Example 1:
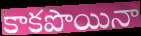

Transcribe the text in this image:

కాకపొయినా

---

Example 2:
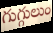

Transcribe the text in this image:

గుగ్గులుం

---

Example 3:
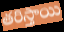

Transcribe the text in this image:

తరిస్తాయి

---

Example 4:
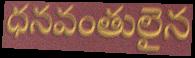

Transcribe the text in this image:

ధనవంతులైన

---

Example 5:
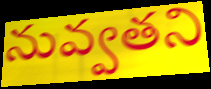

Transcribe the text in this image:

నువ్వతని